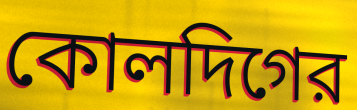
কোলদিগের